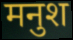
मनुश